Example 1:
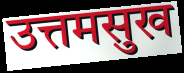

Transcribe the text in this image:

उत्तमसुख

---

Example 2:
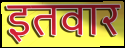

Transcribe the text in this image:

इतवार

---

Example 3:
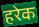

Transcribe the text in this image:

हरेक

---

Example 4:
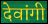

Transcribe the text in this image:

देवांगी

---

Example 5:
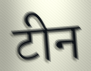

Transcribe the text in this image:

टीन